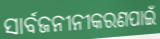
ସାର୍ବଜନୀନୀକରଣପାଇଁ